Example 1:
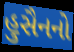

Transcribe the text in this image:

હુસૈનનો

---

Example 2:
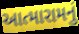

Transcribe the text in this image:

આત્મારામનું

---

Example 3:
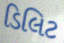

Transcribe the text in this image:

ડિલિટ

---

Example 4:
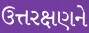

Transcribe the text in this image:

ઉત્તરક્ષણને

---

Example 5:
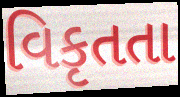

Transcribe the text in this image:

વિકૃતતા